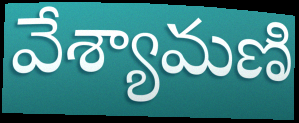
వేశ్యామణి